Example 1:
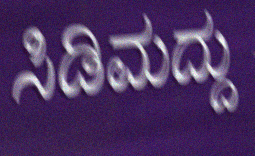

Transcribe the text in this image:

ಸಿಡಿಮದ್ದು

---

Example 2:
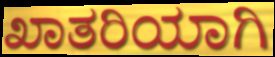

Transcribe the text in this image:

ಖಾತರಿಯಾಗಿ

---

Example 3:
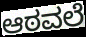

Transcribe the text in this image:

ಆಠವಲೆ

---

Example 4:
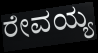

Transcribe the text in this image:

ರೇವಯ್ಯ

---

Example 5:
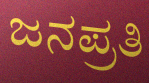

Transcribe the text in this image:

ಜನಪ್ರತಿ